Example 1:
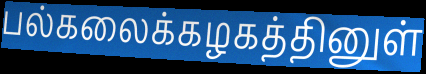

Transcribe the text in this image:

பல்கலைக்கழகத்தினுள்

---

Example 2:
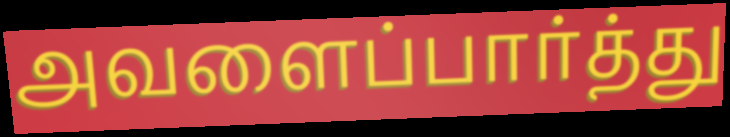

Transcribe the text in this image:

அவளைப்பார்த்து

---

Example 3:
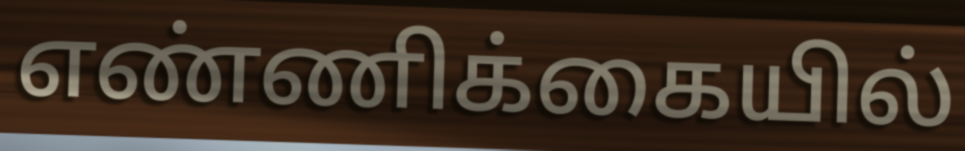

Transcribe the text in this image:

எண்ணிக்கையில்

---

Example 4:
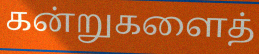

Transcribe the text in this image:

கன்றுகளைத்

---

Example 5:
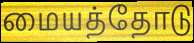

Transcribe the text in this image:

மையத்தோடு